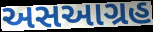
અસઆગ્રહ